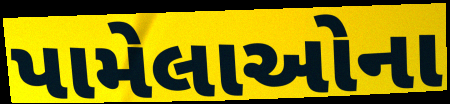
પામેલાઓના